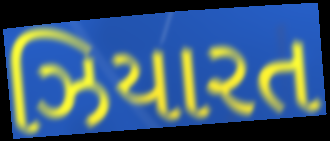
ઝિયારત